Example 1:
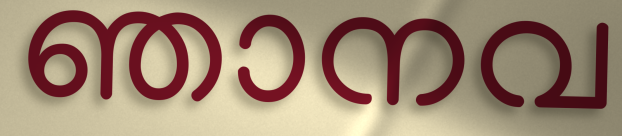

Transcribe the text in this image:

ഞാനവ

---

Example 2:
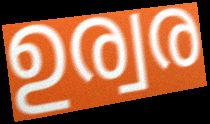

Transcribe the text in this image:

ഉര്വര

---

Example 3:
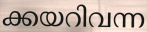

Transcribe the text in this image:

ക്കയറിവന്ന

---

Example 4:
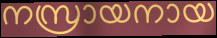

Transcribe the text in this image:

നസ്രായനായ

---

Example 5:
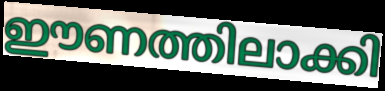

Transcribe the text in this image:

ഈണത്തിലാക്കി